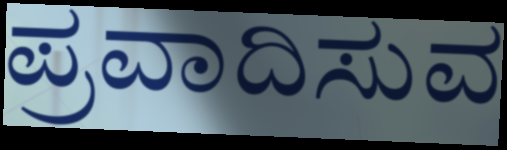
ಪ್ರವಾದಿಸುವ